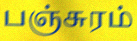
பஞ்சுரம்